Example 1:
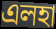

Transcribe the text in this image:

এলহা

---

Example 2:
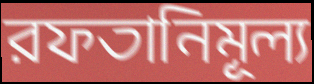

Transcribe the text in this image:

রফতানিমূল্য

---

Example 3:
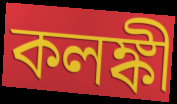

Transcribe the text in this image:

কলঙ্কী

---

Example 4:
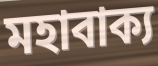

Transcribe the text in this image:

মহাবাক্য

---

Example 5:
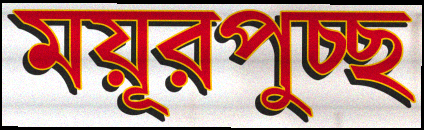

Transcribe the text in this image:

ময়ূরপুচ্ছ